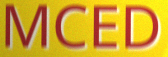
MCED